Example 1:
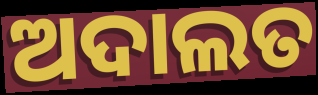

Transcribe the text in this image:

ଅଦାଲତ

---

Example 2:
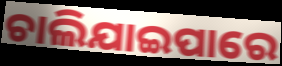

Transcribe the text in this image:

ଚାଲିଯାଇପାରେ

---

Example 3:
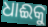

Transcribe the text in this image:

ଧାଈକୁ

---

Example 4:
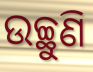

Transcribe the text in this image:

ଉଚ୍ଛୁଣି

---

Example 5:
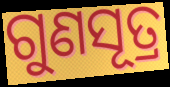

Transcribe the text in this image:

ଗୁଣସୂତ୍ର